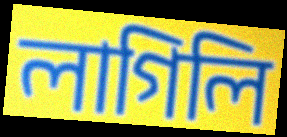
লাগিলি